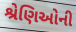
શ્રેણિઓની